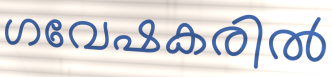
ഗവേഷകരിൽ